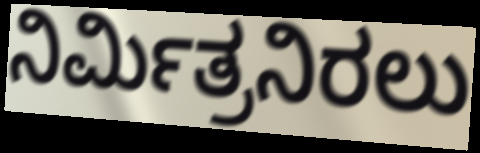
ನಿರ್ಮಿತ್ರನಿರಲು